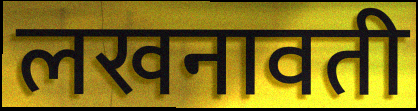
लखनावती